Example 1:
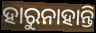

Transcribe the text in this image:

ହାରୁନାହାନ୍ତି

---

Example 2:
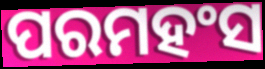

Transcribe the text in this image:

ପରମହଂସ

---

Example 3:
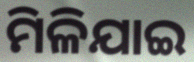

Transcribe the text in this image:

ମିଳିଯାଇ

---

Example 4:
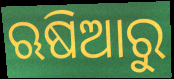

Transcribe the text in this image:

ଋଷିଆରୁ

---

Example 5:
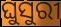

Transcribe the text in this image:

ଘୁସୁରୀ